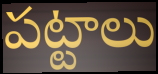
పట్టాలు